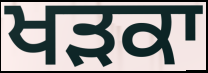
ਖੜਕਾ